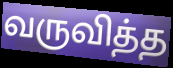
வருவித்த